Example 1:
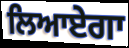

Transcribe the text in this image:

ਲਿਆਏਗਾ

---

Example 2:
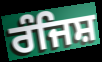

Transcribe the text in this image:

ਰੰਜਿਸ਼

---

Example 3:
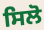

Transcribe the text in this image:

ਸਿਲੋ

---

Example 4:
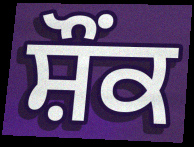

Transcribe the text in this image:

ਸ਼ੌੰਕ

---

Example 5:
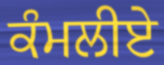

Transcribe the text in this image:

ਕੰਮਲੀਏ